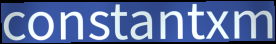
constantxm